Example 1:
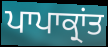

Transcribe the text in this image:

ਪਾਪਾਕ੍ਰਾਂਤ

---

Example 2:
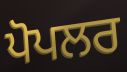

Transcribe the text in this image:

ਪੋਪਲਰ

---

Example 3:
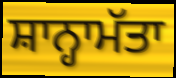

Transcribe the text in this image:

ਸ਼ਾਨ੍ਹਾਮੱਤਾ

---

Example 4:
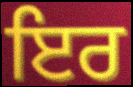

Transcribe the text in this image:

ਇਰ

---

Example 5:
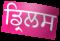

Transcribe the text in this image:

ਡ੍ਰਿਲਸ